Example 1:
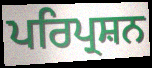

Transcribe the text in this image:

ਪਰਿਪ੍ਰਸ਼ਨ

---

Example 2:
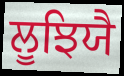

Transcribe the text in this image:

ਲੂਝਿਯੈ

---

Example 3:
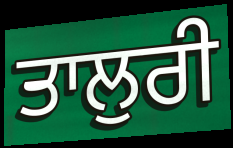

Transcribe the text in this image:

ਤਾਲੁਰੀ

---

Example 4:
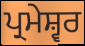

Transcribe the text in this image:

ਪ੍ਰਮੇਸ਼੍ਵਰ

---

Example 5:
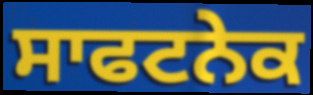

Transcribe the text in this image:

ਸਾਫਟਨੇਕ